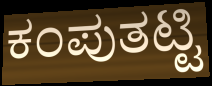
ಕಂಪುತಟ್ಟಿ